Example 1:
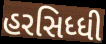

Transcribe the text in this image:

હરસિધ્ધી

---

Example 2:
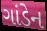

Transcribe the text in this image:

ગાંડેન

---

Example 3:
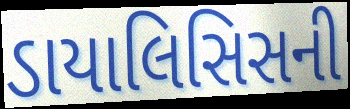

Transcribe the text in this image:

ડાયાલિસિસની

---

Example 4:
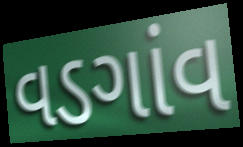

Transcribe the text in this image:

વડગાંવ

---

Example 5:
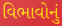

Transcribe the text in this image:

વિભાવોનું